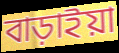
বাড়াইয়া